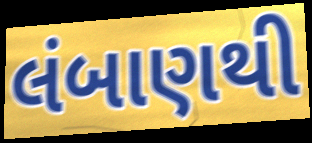
લંબાણથી